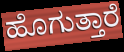
ಹೊಗುತ್ತಾರೆ